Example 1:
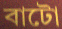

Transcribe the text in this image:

বাটো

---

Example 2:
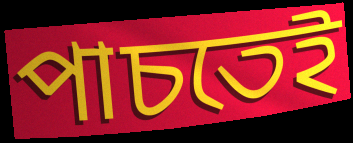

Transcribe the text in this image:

পাচতেই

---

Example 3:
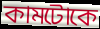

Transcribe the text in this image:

কামটোকে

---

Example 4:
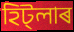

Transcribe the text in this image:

হিট্‌লাৰ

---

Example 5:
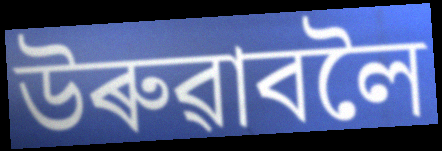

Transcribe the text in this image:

উৰুৱাবলৈ